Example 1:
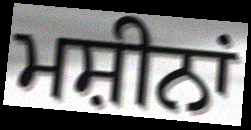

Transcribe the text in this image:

ਮਸ਼ੀਨਾਂ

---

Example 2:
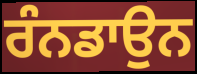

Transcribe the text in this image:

ਰੰਨਡਾਉਨ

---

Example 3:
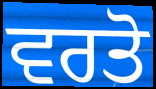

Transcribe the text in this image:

ਵਰਤੋ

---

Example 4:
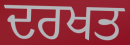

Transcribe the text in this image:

ਦਰਖਤ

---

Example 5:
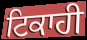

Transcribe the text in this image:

ਟਿਕਾਹੀ